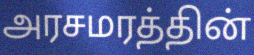
அரசமரத்தின்